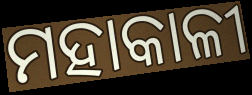
ମହାକାଳୀ